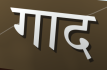
गाद